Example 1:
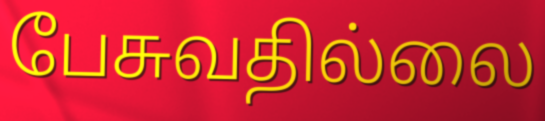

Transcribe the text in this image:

பேசுவதில்லை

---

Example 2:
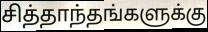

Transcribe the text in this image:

சித்தாந்தங்களுக்கு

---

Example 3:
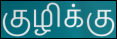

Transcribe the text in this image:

குழிக்கு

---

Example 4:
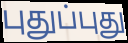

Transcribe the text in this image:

புதுப்புது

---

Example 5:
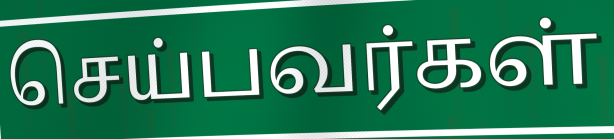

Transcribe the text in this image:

செய்பவர்கள்